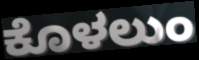
ಕೊಳಲುಂ